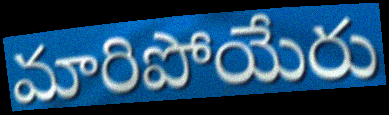
మారిపోయేరు